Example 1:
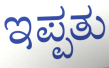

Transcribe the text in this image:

ಇಪ್ಪತು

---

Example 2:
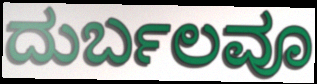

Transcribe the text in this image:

ದುರ್ಬಲವೂ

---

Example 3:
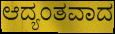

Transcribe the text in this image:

ಆದ್ಯಂತವಾದ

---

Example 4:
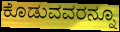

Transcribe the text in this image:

ಕೊಡುವವರನ್ನೂ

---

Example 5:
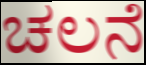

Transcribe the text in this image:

ಚಲನೆ